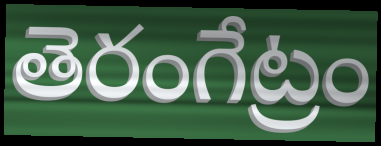
తెరంగేట్రం